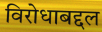
विरोधाबद्दल